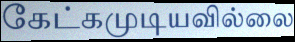
கேட்கமுடியவில்லை